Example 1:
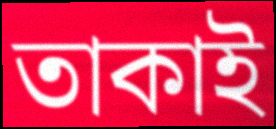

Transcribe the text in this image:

তাকাই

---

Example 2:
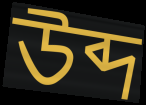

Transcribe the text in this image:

উব্দ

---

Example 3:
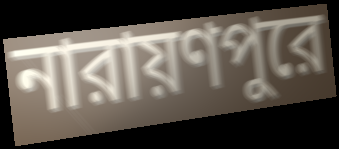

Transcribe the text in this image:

নারায়ণপুরে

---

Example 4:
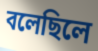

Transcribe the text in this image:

বলেছিলে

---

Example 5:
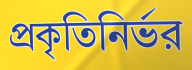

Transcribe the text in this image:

প্রকৃতিনির্ভর